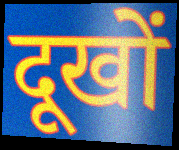
दूखों